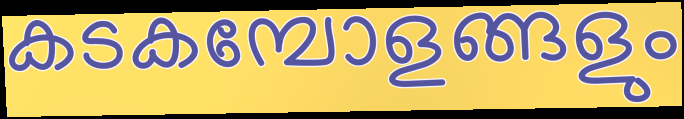
കടകമ്പോളങ്ങളും